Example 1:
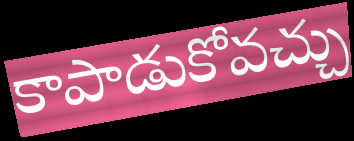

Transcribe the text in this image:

కాపాడుకోవచ్చు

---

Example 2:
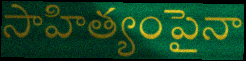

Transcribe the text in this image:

సాహిత్యంపైనా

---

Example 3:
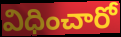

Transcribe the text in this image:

విధించారో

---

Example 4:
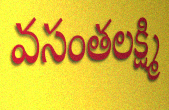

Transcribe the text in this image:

వసంతలక్ష్మి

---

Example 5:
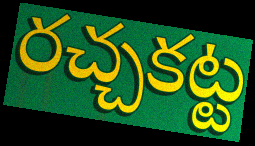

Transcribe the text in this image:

రచ్చకట్ట